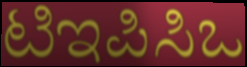
ಟಿಇಪಿಸಿಒ